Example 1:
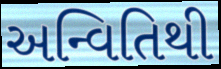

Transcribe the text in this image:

અન્વિતિથી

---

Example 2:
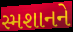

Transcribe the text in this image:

સ્મશાનને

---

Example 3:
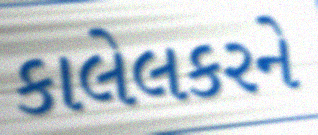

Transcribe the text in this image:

કાલેલકરને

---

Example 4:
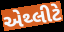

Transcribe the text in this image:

એથ્લીટે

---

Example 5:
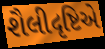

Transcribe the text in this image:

શૈલીદૃષ્ટિએ